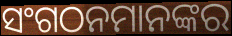
ସଂଗଠନମାନଙ୍କର